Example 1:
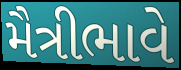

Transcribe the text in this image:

મૈત્રીભાવે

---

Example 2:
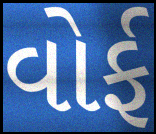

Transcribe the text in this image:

વોર્ફ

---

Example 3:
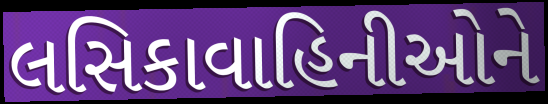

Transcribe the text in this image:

લસિકાવાહિનીઓને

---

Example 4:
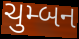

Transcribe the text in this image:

ચુમ્બન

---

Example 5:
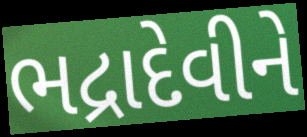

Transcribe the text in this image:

ભદ્રાદેવીને